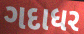
ગદાધર